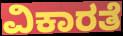
ವಿಕಾರತೆ